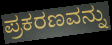
ಪ್ರಕರಣವನ್ನು